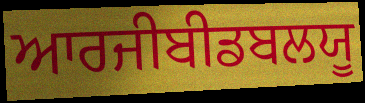
ਆਰਜੀਬੀਡਬਲਯੂ